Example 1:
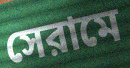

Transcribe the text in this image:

সেরামে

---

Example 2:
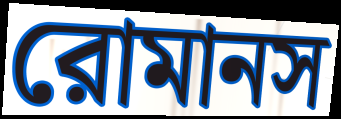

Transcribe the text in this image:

রোমানস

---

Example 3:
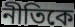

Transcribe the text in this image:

নীতিকে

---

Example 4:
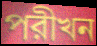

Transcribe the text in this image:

পরীখন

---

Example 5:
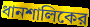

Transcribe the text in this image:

ধানশালিকের